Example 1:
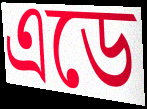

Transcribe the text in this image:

এডে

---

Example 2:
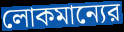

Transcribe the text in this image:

লোকমান্যের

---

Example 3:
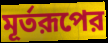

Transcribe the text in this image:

মূর্তরূপের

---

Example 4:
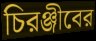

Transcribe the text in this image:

চিরঞ্জীবের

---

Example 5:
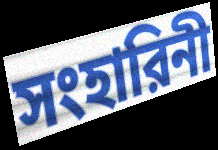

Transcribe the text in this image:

সংহারিনী